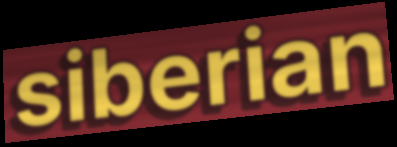
siberian